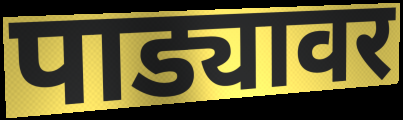
पाड्यावर